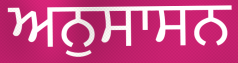
ਅਨੁਸਾਸਨ